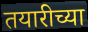
तयारीच्या